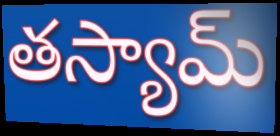
తస్యామ్